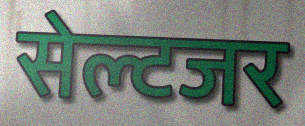
सेल्टजर